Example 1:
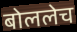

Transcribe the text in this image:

बोललेच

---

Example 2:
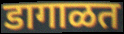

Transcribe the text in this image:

डागाळत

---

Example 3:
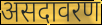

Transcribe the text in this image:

असदावरण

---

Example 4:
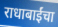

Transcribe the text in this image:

राधाबाईंचा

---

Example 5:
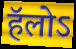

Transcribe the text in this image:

हॅलोऽ